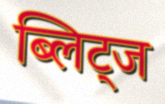
ब्लिट्ज